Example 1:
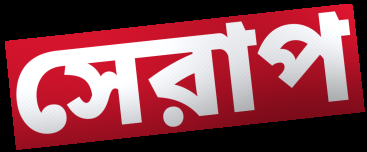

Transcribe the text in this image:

সেরাপ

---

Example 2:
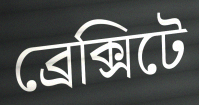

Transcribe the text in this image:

ব্রেক্সিটে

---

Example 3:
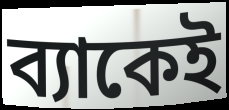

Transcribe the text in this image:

ব্যাকেই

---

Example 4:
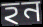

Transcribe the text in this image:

হন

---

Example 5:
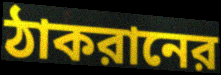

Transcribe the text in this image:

ঠাকরানের